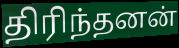
திரிந்தனன்